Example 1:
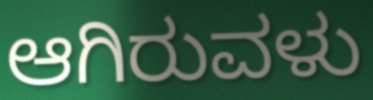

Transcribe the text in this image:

ಆಗಿರುವಳು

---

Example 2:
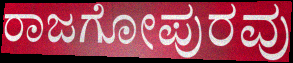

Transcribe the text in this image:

ರಾಜಗೋಪುರವು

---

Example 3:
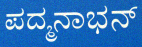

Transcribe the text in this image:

ಪದ್ಮನಾಭನ್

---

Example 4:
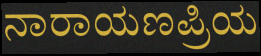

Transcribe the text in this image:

ನಾರಾಯಣಪ್ರಿಯ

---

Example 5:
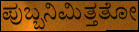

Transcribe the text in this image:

ಪುಬ್ಬನಿಮಿತ್ತತೋ